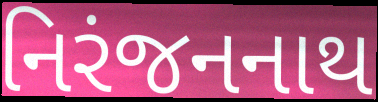
નિરંજનનાથ